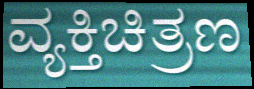
ವ್ಯಕ್ತಿಚಿತ್ರಣ